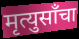
मृत्युसाँचा